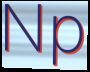
Np